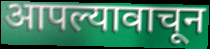
आपल्यावाचून